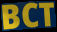
BCT